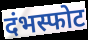
दंभस्फोट